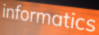
informatics